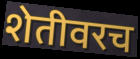
शेतीवरच